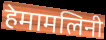
हेमामलिनी